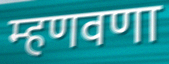
म्हणवणा